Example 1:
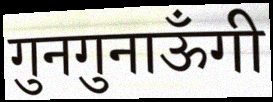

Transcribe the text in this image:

गुनगुनाऊँगी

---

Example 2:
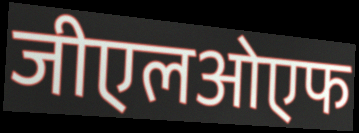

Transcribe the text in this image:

जीएलओएफ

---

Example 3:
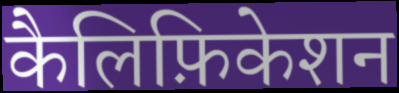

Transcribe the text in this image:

कैलिफ़िकेशन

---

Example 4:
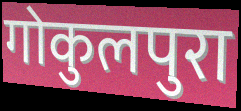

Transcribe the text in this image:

गोकुलपुरा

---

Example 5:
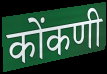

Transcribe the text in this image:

कोंकणी